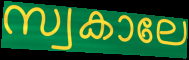
സ്വകാലേ